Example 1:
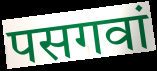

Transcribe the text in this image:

पसगवां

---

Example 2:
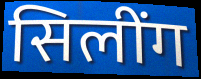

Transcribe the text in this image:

सिलींग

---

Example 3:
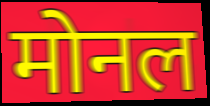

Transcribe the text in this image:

मोनल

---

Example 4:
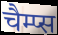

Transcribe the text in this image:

चैम्प्स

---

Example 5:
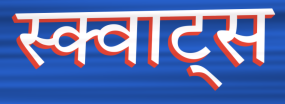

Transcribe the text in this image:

स्क्वाट्स